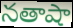
నతాషా